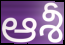
ఆశీ